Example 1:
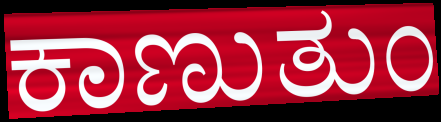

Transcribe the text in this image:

ಕಾಣುತುಂ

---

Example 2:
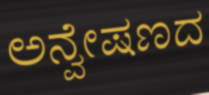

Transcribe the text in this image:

ಅನ್ವೇಷಣದ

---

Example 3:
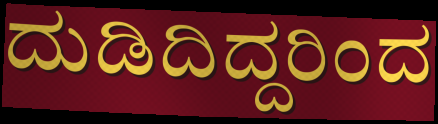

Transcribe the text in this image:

ದುಡಿದಿದ್ದರಿಂದ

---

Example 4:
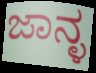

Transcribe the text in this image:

ಜಾನ್ಳ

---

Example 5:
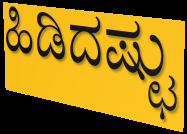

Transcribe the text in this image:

ಹಿಡಿದಷ್ಟು